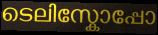
ടെലിസ്കോപ്പോ